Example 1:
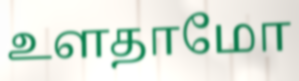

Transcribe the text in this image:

உளதாமோ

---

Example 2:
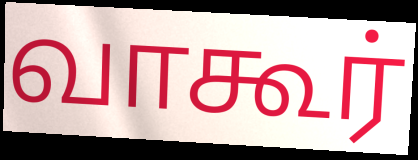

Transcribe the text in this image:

வாகூர்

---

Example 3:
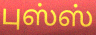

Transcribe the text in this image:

புஸ்ஸ்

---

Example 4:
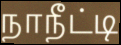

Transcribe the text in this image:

நாநீட்டி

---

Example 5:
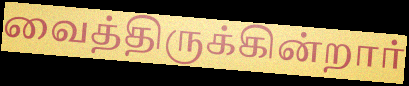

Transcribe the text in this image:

வைத்திருக்கின்றார்